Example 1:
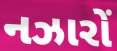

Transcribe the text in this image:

નઝારોં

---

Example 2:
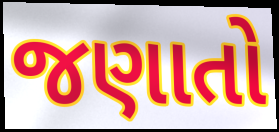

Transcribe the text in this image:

જણાતો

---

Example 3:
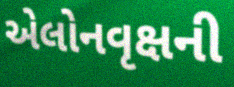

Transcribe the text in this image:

એલોનવૃક્ષની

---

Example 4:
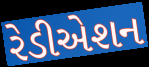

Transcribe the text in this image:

રેડીએશન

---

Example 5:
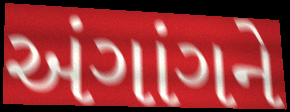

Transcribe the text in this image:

અંગાંગને